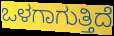
ಒಳಗಾಗುತ್ತಿದೆ